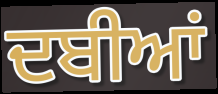
ਦਬੀਆਂ